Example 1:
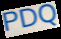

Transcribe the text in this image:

PDQ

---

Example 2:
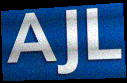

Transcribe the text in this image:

AJL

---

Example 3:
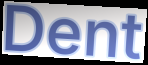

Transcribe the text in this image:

Dent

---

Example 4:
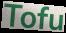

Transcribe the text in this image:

Tofu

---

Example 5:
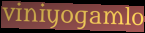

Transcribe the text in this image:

viniyogamlo